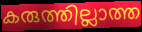
കരുത്തില്ലാത്ത